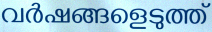
വർഷങ്ങളെടുത്ത്